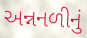
અન્નનળીનું